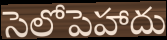
సెలోపెహాదు